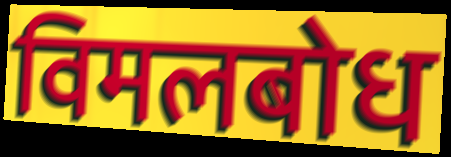
विमलबोध